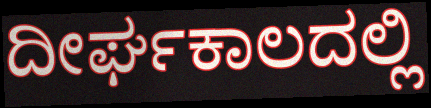
ದೀರ್ಘಕಾಲದಲ್ಲಿ